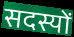
सदस्यों